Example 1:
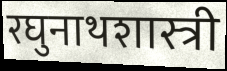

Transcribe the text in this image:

रघुनाथशास्त्री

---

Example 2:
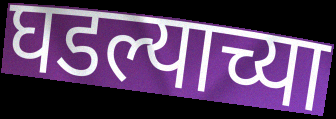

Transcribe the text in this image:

घडल्याच्या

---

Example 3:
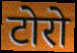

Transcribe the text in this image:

टोरो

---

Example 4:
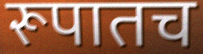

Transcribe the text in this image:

रूपातच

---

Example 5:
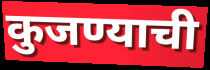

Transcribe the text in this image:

कुजण्याची